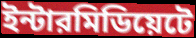
ইন্টারমিডিয়েটে